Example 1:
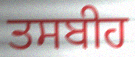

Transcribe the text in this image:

ਤਸਬੀਹ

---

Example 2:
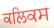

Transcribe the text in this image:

ਕਲਿਕਸ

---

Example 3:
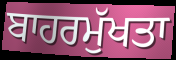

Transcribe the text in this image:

ਬਾਹਰਮੁੱਖਤਾ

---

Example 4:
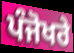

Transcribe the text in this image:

ਪੰਜੋਖਰੇ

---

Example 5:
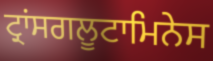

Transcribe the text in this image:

ਟ੍ਰਾਂਸਗਲੂਟਾਮਿਨੇਸ